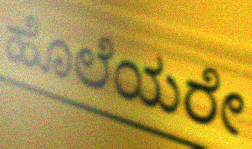
ಹೊಲೆಯರೇ